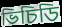
ভিচিডি